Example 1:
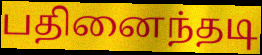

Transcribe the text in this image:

பதினைந்தடி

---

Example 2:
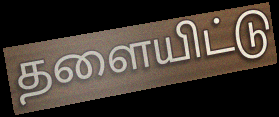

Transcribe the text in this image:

தளையிட்டு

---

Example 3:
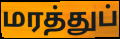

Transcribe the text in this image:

மரத்துப்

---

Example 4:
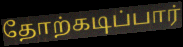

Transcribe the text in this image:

தோற்கடிப்பார்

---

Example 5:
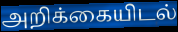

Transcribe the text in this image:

அறிக்கையிடல்